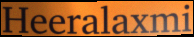
Heeralaxmi